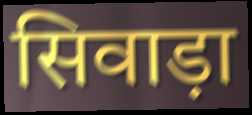
सिवाड़ा